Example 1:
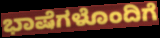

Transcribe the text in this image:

ಭಾಷೆಗಳೊಂದಿಗೆ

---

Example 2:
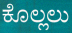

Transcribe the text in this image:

ಕೊಲ್ಲಲು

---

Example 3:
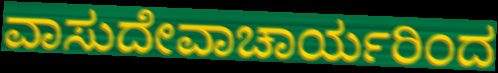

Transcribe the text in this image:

ವಾಸುದೇವಾಚಾರ್ಯರಿಂದ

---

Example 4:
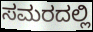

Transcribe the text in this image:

ಸಮರದಲ್ಲಿ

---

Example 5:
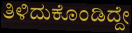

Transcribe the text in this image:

ತಿಳಿದುಕೊಂಡಿದ್ದೇ